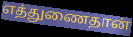
எத்துணைதான்